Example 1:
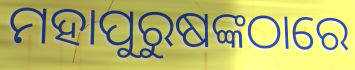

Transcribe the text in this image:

ମହାପୁରୁଷଙ୍କଠାରେ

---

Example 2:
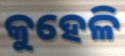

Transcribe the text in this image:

କୁହେଳି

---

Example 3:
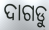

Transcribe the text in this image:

ଦାଗଡୁ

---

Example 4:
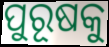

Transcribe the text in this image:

ପୁରୂଷକୁ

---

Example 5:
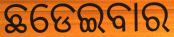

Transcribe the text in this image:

ଛଡେଇବାର